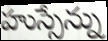
హుస్సేన్ను